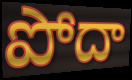
పోదా